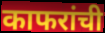
काफरांची